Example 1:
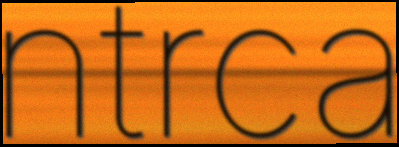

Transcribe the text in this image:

ntrca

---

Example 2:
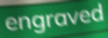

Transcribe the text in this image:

engraved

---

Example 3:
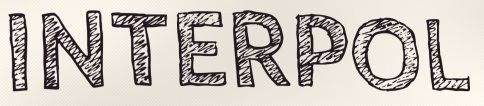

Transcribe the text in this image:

INTERPOL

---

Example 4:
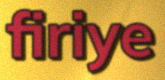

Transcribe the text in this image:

firiye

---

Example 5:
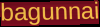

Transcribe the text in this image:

bagunnai